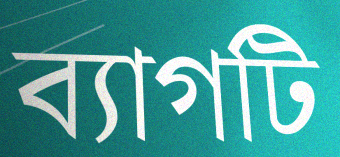
ব্যাগটি